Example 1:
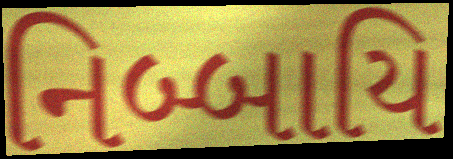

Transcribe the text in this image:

નિબ્બાયિ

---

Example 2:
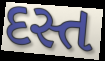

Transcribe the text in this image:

દસ્ત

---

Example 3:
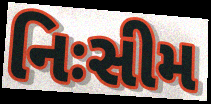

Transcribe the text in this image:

નિઃસીમ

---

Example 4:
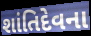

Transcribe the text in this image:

શાંતિદેવના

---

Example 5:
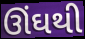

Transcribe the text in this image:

ઊંઘથી